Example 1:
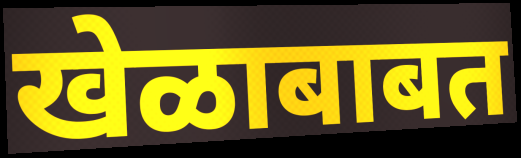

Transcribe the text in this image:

खेळाबाबत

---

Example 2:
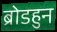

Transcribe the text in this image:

ब्रोडहुन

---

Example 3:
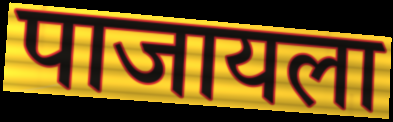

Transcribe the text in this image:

पाजायला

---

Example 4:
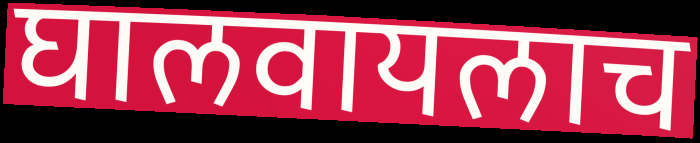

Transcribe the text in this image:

घालवायलाच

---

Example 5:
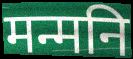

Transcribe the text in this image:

मन्मनि